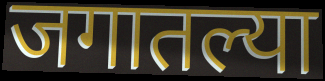
जगातल्या